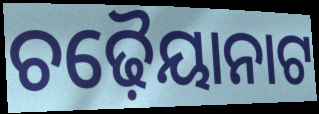
ଚଢ଼ୈୟାନାଟ